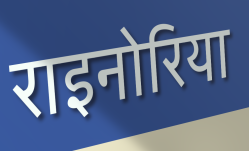
राइनोरिया